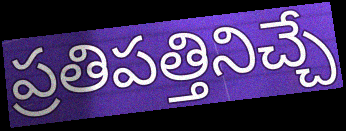
ప్రతిపత్తినిచ్చే